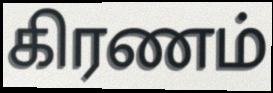
கிரணம்